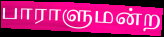
பாராளுமன்ற